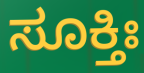
ಸೂಕ್ತಿಃ